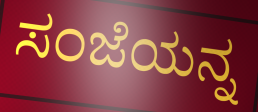
ಸಂಜೆಯನ್ನ